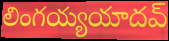
లింగయ్యయాదవ్